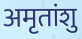
अमृतांशु